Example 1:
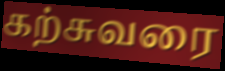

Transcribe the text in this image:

கற்சுவரை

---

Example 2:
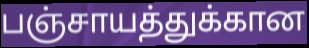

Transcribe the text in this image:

பஞ்சாயத்துக்கான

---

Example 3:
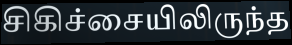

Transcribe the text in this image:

சிகிச்சையிலிருந்த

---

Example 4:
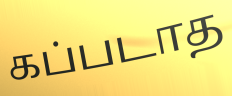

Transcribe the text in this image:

கப்படாத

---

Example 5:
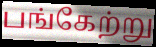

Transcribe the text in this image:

பங்கேற்று